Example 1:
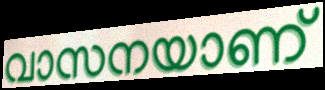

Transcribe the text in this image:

വാസനയാണ്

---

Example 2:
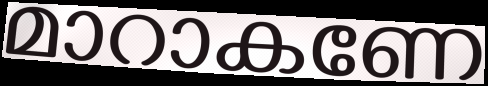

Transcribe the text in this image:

മാറാകണേ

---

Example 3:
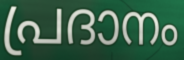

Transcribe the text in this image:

പ്രദാനം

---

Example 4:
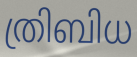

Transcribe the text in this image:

ത്രിബിധ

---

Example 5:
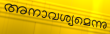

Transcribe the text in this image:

അനാവശ്യമെന്നു